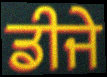
ਡੀਜੇ